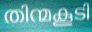
തിന്മകൂടി